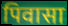
पिवासा